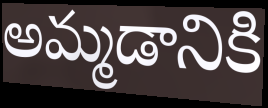
అమ్మడానికి